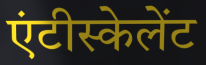
एंटीस्केलेंट